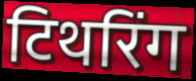
टिथरिंग